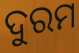
ଦୁରମ